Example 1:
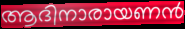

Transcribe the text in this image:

ആദിനാരായണൻ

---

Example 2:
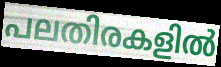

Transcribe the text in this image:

പലതിരകളിൽ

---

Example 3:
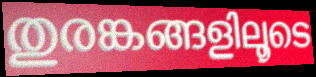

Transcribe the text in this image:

തുരങ്കങ്ങളിലൂടെ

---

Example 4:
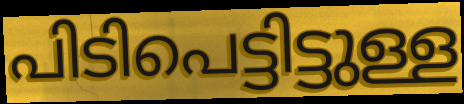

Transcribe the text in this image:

പിടിപെട്ടിട്ടുള്ള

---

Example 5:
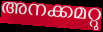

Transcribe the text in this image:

അനക്കമറ്റു